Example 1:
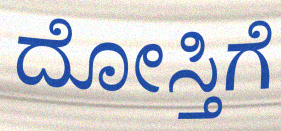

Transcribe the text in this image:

ದೋಸ್ತಿಗೆ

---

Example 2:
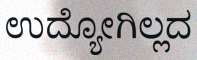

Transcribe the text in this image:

ಉದ್ಯೋಗಿಲ್ಲದ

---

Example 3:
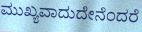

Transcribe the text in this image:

ಮುಖ್ಯವಾದುದೇನೆಂದರೆ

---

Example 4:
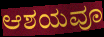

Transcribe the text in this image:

ಆಶಯವೂ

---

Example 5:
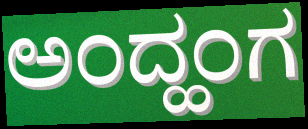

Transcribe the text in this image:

ಅಂದ್ಹಂಗ